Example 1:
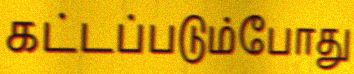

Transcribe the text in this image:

கட்டப்படும்போது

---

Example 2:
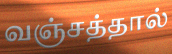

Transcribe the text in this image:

வஞ்சத்தால்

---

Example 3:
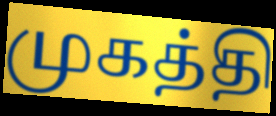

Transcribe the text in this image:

முகத்தி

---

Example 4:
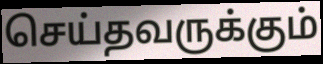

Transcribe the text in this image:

செய்தவருக்கும்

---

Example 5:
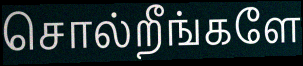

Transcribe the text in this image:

சொல்றீங்களே